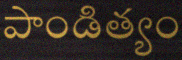
పాండిత్యం